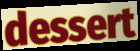
dessert